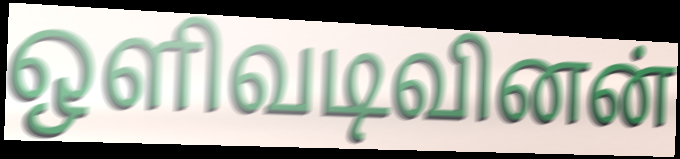
ஒளிவடிவினன்